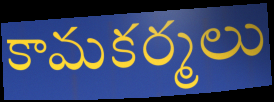
కామకర్మలు